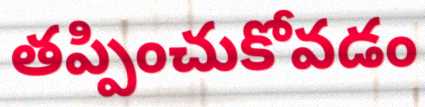
తప్పించుకోవడం